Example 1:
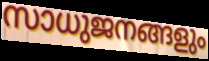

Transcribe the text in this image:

സാധുജനങ്ങളും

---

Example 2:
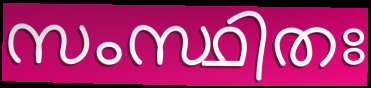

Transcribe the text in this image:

സംസ്ഥിതഃ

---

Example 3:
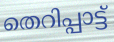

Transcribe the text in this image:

തെറിപ്പാട്ട്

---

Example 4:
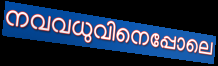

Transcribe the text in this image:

നവവധുവിനെപ്പോലെ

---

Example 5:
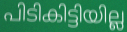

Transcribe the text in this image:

പിടികിട്ടിയില്ല